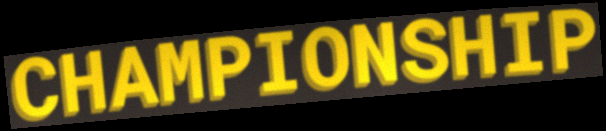
CHAMPIONSHIP